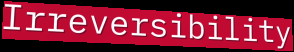
Irreversibility